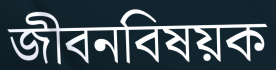
জীবনবিষয়ক